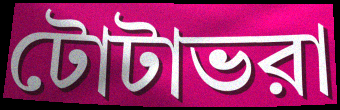
টোটাভরা